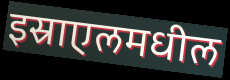
इस्राएलमधील